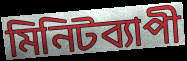
মিনিটব্যাপী